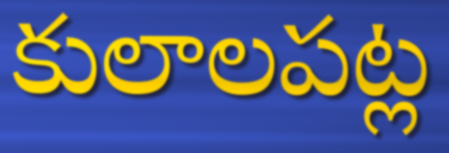
కులాలపట్ల